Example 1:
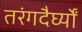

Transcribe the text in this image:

तरंगदैर्घ्यों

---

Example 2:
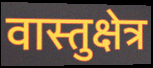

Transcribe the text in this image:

वास्तुक्षेत्र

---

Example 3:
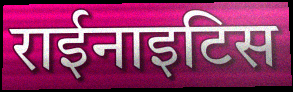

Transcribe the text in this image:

राईनाइटिस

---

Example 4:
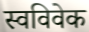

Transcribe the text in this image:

स्वविवेक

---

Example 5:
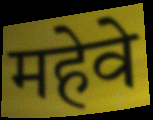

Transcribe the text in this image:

महेवे